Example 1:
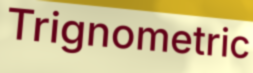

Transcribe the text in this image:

Trignometric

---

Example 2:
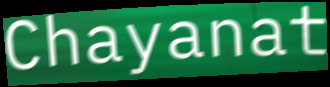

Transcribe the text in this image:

Chayanat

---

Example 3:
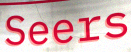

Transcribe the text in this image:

Seers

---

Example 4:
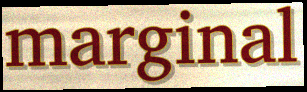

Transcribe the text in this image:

marginal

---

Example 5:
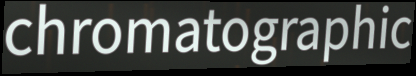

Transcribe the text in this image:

chromatographic